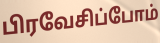
பிரவேசிப்போம்